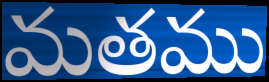
మతము